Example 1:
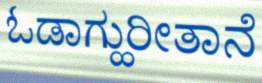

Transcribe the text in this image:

ಓಡಾಗ್ಹುರೀತಾನೆ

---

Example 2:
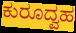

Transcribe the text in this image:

ಕುರೂದ್ವಹ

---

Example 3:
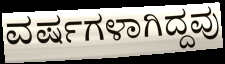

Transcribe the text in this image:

ವರ್ಷಗಳಾಗಿದ್ದವು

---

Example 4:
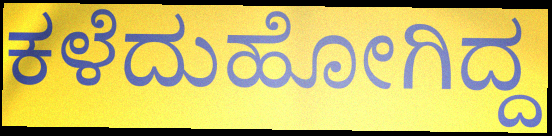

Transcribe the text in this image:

ಕಳೆದುಹೋಗಿದ್ದ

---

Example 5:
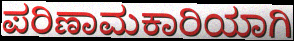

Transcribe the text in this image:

ಪರಿಣಾಮಕಾರಿಯಾಗಿ